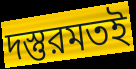
দস্তুরমতই